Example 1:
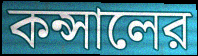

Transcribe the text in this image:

কন্সালের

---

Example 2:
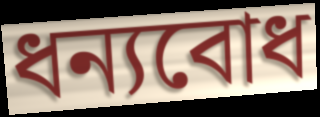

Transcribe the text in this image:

ধন্যবোধ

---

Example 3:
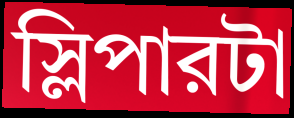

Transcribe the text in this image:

স্লিপারটা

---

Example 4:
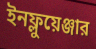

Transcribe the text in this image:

ইনফ্লুয়েঞ্জার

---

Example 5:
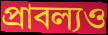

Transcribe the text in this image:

প্রাবল্যও